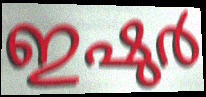
ഇഷുർ